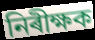
নিৰীক্ষক